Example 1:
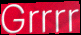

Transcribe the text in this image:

Grrrr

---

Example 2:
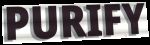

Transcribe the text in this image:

PURIFY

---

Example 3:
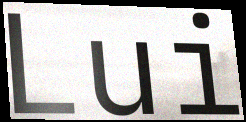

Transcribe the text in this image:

Lui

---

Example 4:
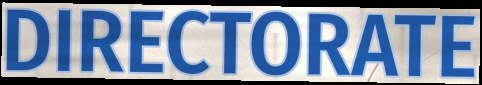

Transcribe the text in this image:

DIRECTORATE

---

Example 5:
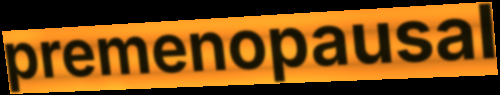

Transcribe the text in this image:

premenopausal